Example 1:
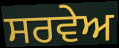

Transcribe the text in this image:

ਸਰਵੇਅ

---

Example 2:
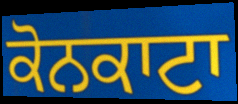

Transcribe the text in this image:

ਕੋਨਕਾਟਾ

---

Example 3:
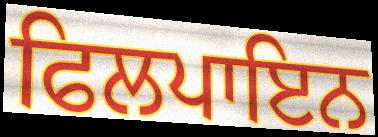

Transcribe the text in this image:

ਫਿਲਪਾਇਨ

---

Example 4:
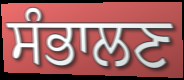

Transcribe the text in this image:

ਸੰਭਾਲਣ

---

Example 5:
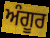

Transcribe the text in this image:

ਅੰਗੂਰ